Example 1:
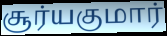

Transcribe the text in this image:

சூர்யகுமார்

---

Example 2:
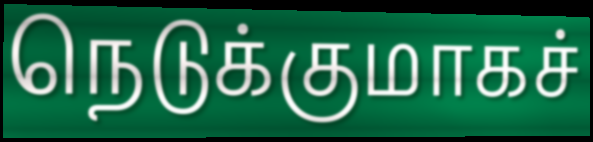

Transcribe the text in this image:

நெடுக்குமாகச்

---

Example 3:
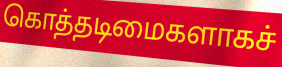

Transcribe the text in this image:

கொத்தடிமைகளாகச்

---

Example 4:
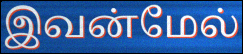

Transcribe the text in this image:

இவன்மேல்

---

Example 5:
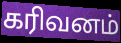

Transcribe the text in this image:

கரிவனம்